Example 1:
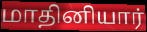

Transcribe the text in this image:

மாதினியார்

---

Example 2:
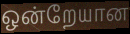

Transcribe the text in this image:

ஒன்றேயான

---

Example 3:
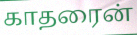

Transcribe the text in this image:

காதரைன்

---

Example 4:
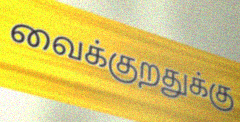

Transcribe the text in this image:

வைக்குறதுக்கு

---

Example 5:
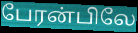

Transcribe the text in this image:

பேரன்பிலே